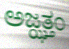
ಅಜ್ಝತ್ತಂ